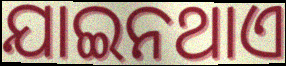
ଯାଇନଥାଏ